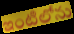
ఇంటిలోను